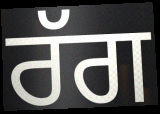
ਰੱਗ